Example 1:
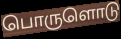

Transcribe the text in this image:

பொருளொடு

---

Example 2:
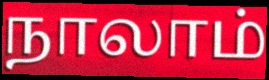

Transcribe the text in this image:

நாலாம்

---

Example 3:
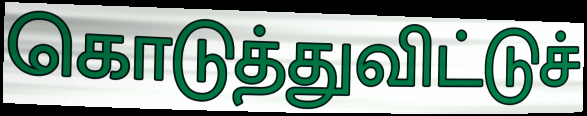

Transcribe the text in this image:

கொடுத்துவிட்டுச்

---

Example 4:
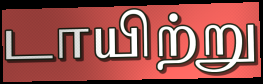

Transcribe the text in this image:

டாயிற்று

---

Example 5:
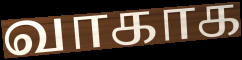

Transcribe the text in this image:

வாகாக